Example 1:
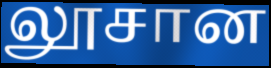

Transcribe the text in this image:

லூசான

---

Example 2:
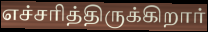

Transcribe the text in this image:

எச்சரித்திருக்கிறார்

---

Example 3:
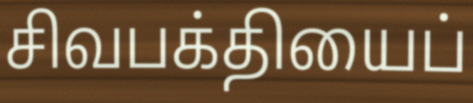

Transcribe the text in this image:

சிவபக்தியைப்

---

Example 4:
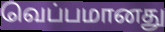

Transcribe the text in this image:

வெப்பமானது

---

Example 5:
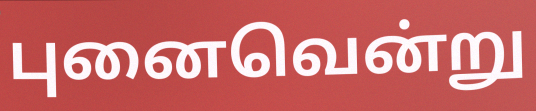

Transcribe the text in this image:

புனைவென்று